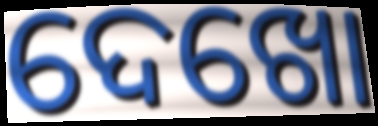
ଦେଖୋ